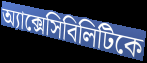
অ্যাক্সেসিবিলিটিকে